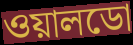
ওয়ালডো